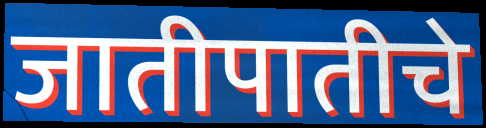
जातीपातीचे